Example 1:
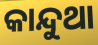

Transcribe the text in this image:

କାନ୍ଦୁଥା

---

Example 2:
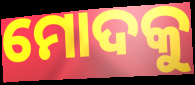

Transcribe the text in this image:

ମୋଦକୁ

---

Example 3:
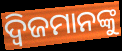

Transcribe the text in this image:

ଦ୍ଵିଜମାନଙ୍କୁ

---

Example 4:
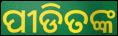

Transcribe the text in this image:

ପୀଡିତଙ୍କ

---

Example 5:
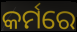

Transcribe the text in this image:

କର୍ମରେ